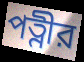
পত্নীর